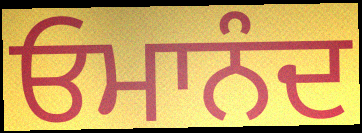
ਓਮਾਨੰਦ